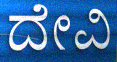
ದೇವಿ